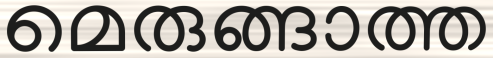
മെരുങ്ങാത്ത